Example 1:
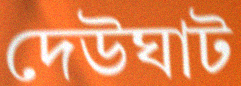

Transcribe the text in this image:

দেউঘাট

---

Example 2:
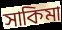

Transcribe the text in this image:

সাকিমা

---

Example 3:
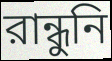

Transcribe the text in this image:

রান্ধুনি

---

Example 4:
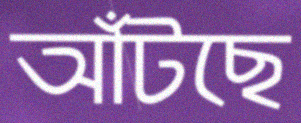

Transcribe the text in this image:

আঁটছে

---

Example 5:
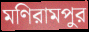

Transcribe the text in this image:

মণিরামপুর